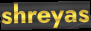
shreyas